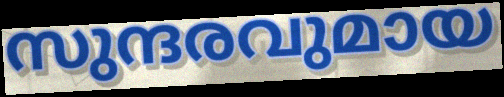
സുന്ദരവുമായ